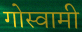
गोस्वामी